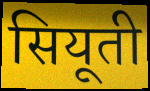
सियूती